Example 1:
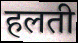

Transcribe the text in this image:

हलती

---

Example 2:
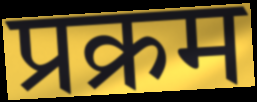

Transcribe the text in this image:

प्रक्रम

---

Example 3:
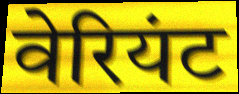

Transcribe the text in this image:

वेरियंट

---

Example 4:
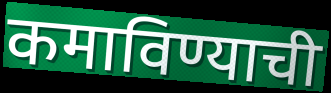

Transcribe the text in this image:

कमाविण्याची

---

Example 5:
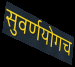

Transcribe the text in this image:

सुवर्णयोगच